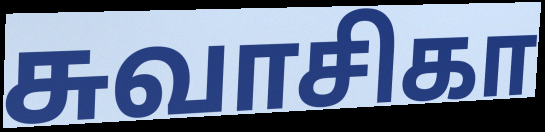
சுவாசிகா